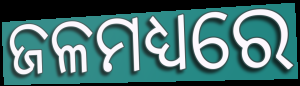
ଜଳମଧ୍ଯରେ